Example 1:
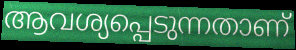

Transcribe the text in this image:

ആവശ്യപ്പെടുന്നതാണ്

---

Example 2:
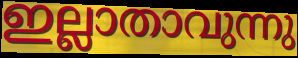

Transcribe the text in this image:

ഇല്ലാതാവുന്നു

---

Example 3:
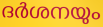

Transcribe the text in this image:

ദർശനയും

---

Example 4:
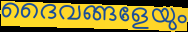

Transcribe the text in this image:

ദൈവങ്ങളേയും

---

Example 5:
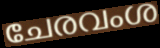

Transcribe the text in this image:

ചേരവംശ